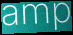
amp